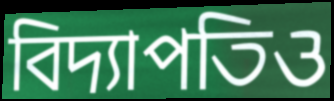
বিদ্যাপতিও